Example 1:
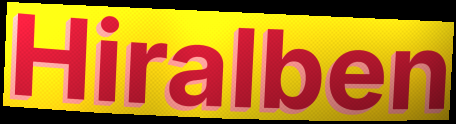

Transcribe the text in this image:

Hiralben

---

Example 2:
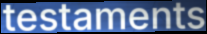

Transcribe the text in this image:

testaments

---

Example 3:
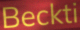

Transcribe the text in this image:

Beckti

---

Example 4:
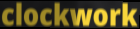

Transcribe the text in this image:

clockwork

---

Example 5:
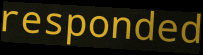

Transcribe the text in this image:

responded